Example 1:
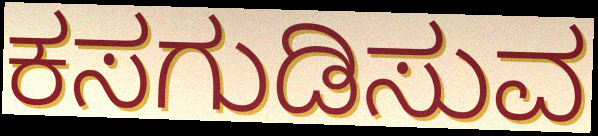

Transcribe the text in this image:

ಕಸಗುಡಿಸುವ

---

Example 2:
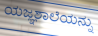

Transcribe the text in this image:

ಯಜ್ಞಶಾಲೆಯನ್ನು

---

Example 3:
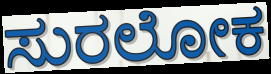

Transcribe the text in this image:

ಸುರಲೋಕ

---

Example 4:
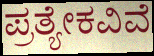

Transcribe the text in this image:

ಪ್ರತ್ಯೇಕವಿವೆ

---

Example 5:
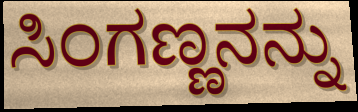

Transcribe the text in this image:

ಸಿಂಗಣ್ಣನನ್ನು